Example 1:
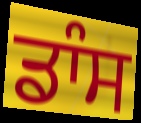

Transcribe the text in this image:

ਡਾੰਸ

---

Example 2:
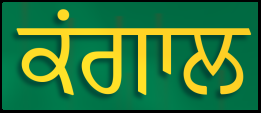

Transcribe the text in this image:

ਕਂਗਾਲ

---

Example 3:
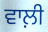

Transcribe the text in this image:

ਵਾਲ਼ੀ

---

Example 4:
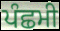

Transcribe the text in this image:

ਪੰਛਮੀ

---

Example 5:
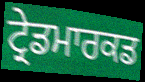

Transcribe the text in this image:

ਟ੍ਰੇਡਮਾਰਕਡ